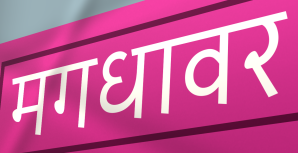
मगधावर